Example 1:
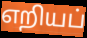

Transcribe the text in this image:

எறியப்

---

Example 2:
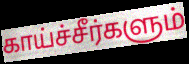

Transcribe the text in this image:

காய்ச்சீர்களும்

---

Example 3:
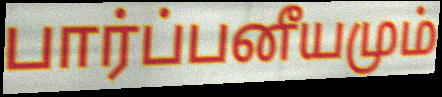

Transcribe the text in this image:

பார்ப்பனீயமும்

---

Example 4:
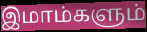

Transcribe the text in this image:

இமாம்களும்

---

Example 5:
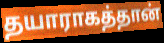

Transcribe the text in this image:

தயாராகத்தான்